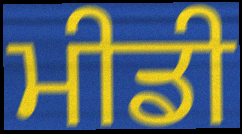
ਮੀਡੀ